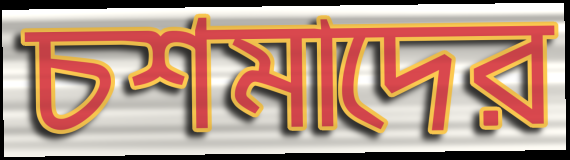
চশমাদের